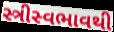
સ્ત્રીસ્વભાવથી